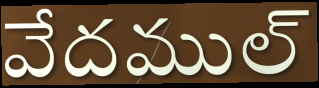
వేదముల్